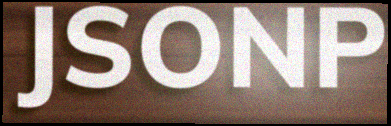
JSONP